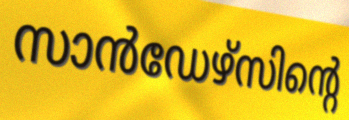
സാൻഡേഴ്സിന്റെ